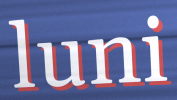
luni